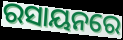
ରସାୟନରେ